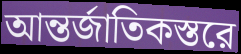
আন্তর্জাতিকস্তরে